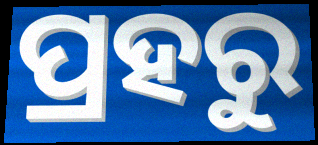
ପ୍ରହରୁ